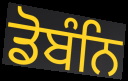
ਡੋਬੰਨਿ